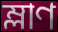
ম্লাণ